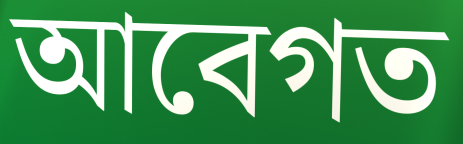
আবেগত